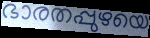
ഭാരതപ്പുഴയെ